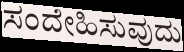
ಸಂದೇಹಿಸುವುದು